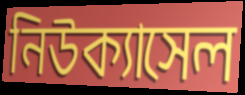
নিউক্যাসেল